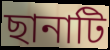
ছানাটি